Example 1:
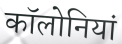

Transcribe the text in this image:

कॉलोनियां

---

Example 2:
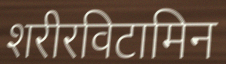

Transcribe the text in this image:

शरीरविटामिन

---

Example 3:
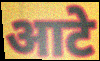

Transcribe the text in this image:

आटे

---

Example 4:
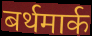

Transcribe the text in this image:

बर्थमार्क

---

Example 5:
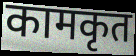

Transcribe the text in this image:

कामकृत